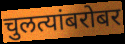
चुलत्यांबरोबर